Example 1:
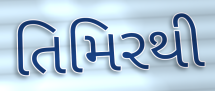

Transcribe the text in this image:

તિમિરથી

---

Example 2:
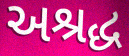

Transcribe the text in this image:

અશ્રદ્ધ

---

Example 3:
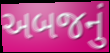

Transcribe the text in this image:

અબજનું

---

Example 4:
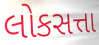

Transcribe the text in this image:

લોકસત્તા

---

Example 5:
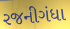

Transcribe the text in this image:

રજનીગંધા